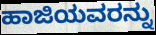
ಹಾಜಿಯವರನ್ನು